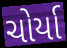
ચોર્યા